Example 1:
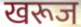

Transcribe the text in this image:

खरूज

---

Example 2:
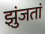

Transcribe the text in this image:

झुंजतां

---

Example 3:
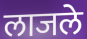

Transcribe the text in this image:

लाजले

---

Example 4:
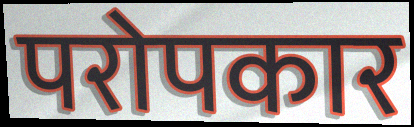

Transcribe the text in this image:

परोपकार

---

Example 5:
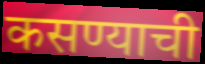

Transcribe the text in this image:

कसण्याची